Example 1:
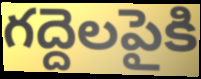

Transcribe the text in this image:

గద్దెలపైకి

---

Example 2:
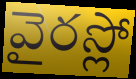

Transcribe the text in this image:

వైరస్లో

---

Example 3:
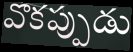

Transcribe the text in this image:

వొకప్పుడు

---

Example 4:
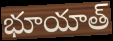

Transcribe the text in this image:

భూయాత్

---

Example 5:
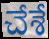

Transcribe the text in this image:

చేశే